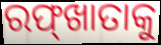
ରଫ୍‌ଖାତାକୁ